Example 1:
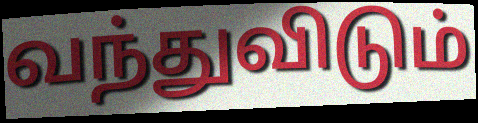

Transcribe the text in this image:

வந்துவிடும்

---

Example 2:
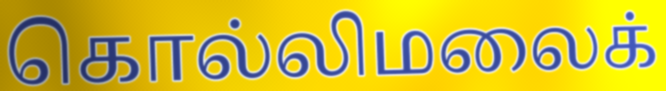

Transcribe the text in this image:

கொல்லிமலைக்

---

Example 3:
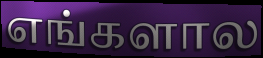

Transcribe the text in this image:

எங்களால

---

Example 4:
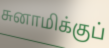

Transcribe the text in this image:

சுனாமிக்குப்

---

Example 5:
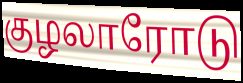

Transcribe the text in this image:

குழலாரோடு